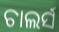
ଚାଲର୍ସ